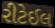
રીટેઈલ